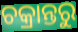
ଚକ୍ରାନ୍ତରୁ